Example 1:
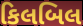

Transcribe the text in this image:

કિલબિલ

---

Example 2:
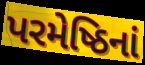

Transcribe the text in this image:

પરમેષ્ઠિનાં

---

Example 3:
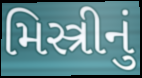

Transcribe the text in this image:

મિસ્ત્રીનું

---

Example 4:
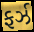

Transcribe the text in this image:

ફર્ઝ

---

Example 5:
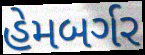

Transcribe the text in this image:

હેમબર્ગર